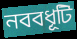
নববধূটি